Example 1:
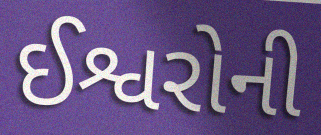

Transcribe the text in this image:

ઈશ્વરોની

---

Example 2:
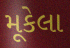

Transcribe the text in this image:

મૂકેલા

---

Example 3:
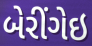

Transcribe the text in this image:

બેરીંગેઇ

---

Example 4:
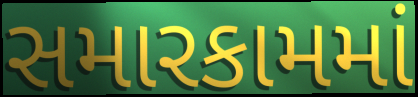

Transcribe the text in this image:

સમારકામમાં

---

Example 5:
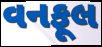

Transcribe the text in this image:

વનફૂલ